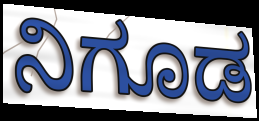
ನಿಗೂಡ